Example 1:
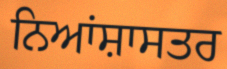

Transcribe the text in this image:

ਨਿਆਂਸ਼ਾਸਤਰ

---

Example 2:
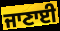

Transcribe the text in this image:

ਜਾਣਾਈ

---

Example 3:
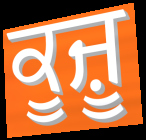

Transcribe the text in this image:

ਕੂਜ਼ੂ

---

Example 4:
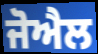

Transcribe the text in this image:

ਜੋਐਲ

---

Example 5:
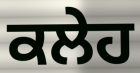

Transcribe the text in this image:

ਕਲੇਹ